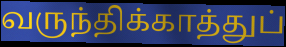
வருந்திக்காத்துப்